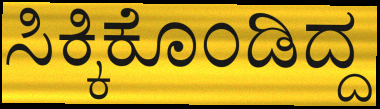
ಸಿಕ್ಕಿಕೊಂಡಿದ್ದ